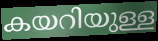
കയറിയുള്ള